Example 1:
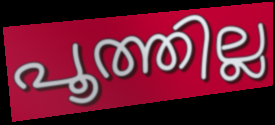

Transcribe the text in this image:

പൂത്തില്ല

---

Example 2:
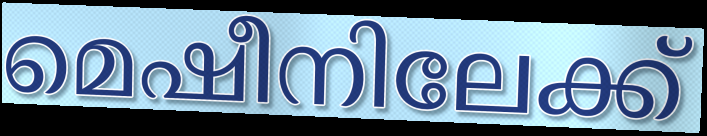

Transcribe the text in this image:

മെഷീനിലേക്ക്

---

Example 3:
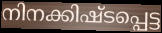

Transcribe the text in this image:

നിനക്കിഷ്ടപ്പെട്ട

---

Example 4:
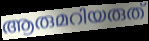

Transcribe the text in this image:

ആരുമറിയരുത്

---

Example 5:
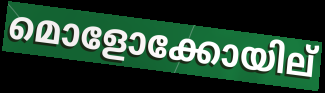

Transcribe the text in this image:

മൊളോക്കോയില്